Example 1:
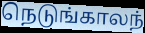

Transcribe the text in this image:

நெடுங்காலந்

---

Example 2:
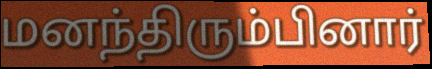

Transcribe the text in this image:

மனந்திரும்பினார்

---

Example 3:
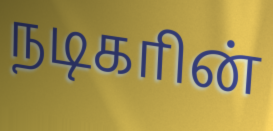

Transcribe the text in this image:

நடிகரின்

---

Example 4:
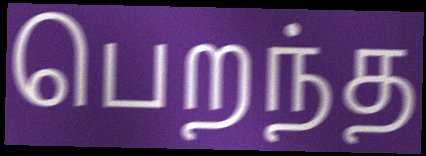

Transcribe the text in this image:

பெறந்த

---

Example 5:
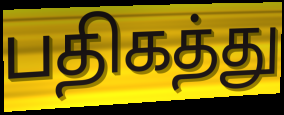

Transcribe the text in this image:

பதிகத்து